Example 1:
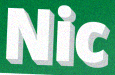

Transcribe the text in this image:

Nic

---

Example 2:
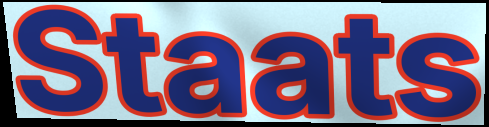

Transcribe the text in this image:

Staats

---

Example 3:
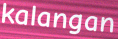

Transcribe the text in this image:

kalangan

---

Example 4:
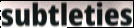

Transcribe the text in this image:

subtleties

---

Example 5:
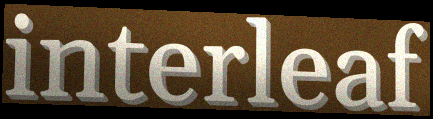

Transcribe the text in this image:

interleaf